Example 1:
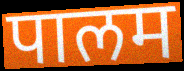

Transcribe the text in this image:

पालम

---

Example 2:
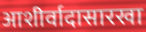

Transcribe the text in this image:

आशीर्वादासारखा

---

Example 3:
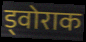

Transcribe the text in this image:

ड्वोराक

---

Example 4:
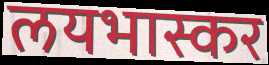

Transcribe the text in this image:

लयभास्कर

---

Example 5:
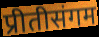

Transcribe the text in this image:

प्रीतीसंगम